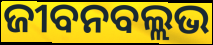
ଜୀବନବଲ୍ଲଭ